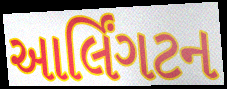
આર્લિંગટન